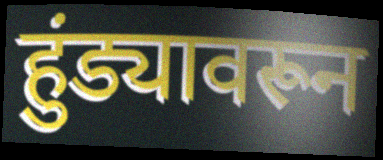
हुंड्यावरून